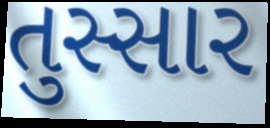
તુસ્સાર